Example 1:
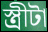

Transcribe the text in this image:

স্ত্রীটা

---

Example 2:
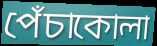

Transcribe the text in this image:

পেঁচাকোলা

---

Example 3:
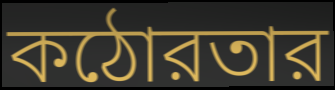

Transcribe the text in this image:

কঠোরতার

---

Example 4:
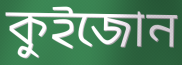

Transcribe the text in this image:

কুইজোন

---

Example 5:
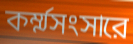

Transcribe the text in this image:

কর্ম্মসংসারে